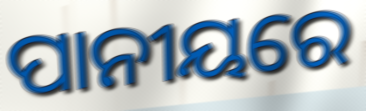
ପାନୀୟରେ